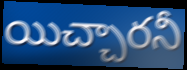
యిచ్చారనీ